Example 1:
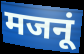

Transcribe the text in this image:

मजनूं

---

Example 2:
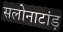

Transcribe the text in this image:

सलोनाटांड़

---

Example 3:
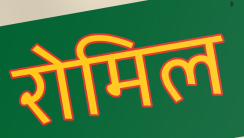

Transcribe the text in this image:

रोमिल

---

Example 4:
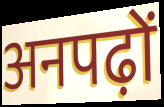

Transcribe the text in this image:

अनपढ़ों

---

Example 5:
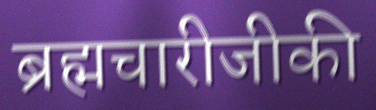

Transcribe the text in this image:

ब्रह्मचारीजीकी